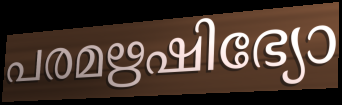
പരമഋഷിഭ്യോ